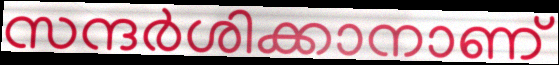
സന്ദർശിക്കാനാണ്